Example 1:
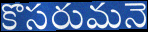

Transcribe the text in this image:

కొసరుమనె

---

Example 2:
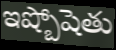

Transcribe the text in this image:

ఇష్బోషెతు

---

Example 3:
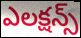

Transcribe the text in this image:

ఎలక్షన్స్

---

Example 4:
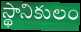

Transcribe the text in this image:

స్థానికులం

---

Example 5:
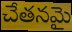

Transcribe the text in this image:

చేతనమై